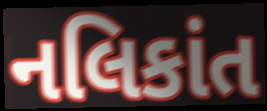
નલિકાંત